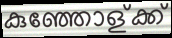
കുഞ്ഞോള്ക്ക്